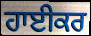
ਹਾਈਕਰ